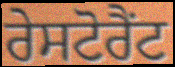
ਰੇਸਟੋਰੈਂਟ